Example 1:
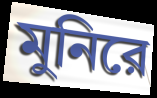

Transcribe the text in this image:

মুনিরে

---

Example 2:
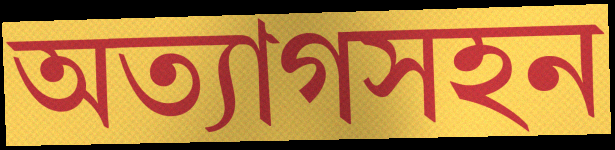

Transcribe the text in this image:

অত্যাগসহন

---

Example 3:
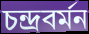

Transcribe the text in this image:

চন্দ্রবর্মন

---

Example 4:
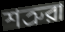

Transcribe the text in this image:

শত্রুরা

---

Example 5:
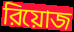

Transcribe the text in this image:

রিয়োজ